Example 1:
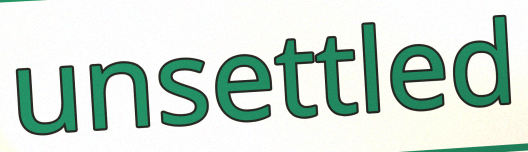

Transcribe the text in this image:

unsettled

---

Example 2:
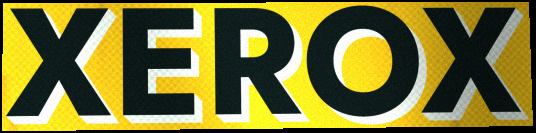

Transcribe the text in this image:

XEROX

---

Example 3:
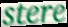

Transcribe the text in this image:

stere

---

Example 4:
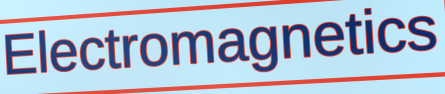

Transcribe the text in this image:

Electromagnetics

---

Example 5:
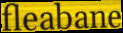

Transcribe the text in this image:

fleabane